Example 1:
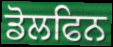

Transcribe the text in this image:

ਡੋਲਫਿਨ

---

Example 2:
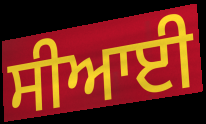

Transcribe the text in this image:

ਸੀਆਈ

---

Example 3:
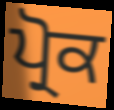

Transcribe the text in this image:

ਪ੍ਰੋਕ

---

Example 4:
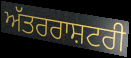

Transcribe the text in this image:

ਅੱਤਰਰਾਸ਼ਟਰੀ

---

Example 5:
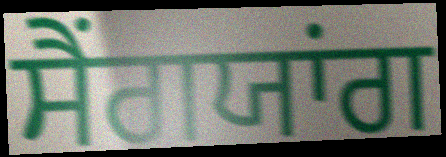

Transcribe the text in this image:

ਸੈਂਗਯਾਂਗ